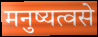
मनुष्यत्वसे